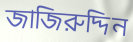
জাজিরুদ্দিন